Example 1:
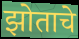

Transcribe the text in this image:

झोताचे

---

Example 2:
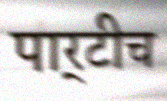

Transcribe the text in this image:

पार्टीच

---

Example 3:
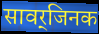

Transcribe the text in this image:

सावर्जिनक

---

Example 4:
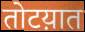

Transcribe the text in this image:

तोटय़ात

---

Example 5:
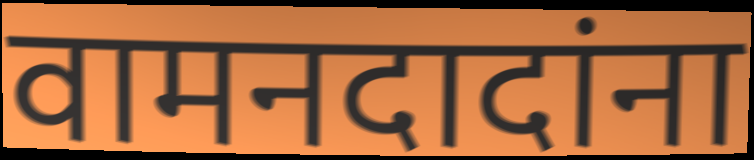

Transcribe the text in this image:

वामनदादांना